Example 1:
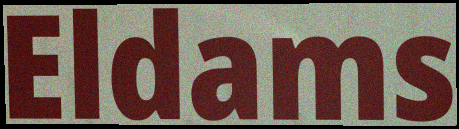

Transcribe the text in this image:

Eldams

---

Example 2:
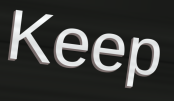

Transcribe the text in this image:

Keep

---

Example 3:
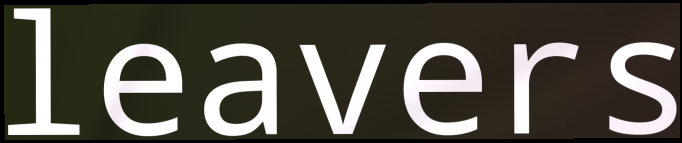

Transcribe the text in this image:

leavers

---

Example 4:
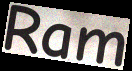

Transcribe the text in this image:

Ram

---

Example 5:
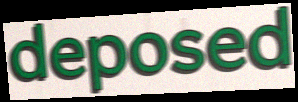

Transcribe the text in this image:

deposed